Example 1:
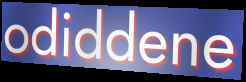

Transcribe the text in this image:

odiddene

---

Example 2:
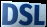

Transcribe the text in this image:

DSL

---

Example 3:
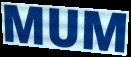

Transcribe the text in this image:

MUM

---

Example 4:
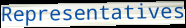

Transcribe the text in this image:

Representatives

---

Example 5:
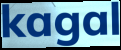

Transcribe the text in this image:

kagal